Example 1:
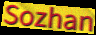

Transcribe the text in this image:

Sozhan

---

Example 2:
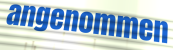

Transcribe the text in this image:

angenommen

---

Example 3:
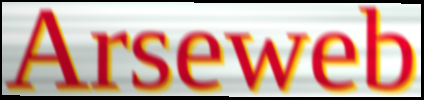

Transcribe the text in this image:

Arseweb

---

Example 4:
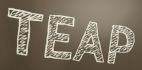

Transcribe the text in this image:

TEAP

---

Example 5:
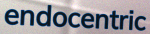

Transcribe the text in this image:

endocentric